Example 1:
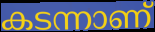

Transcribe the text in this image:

കടന്നാണ്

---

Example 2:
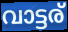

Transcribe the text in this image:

വാട്ടര്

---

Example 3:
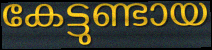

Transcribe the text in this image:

കേട്ടുണ്ടായ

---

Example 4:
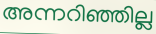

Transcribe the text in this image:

അന്നറിഞ്ഞില്ല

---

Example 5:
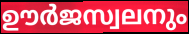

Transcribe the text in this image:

ഊർജസ്വലനും